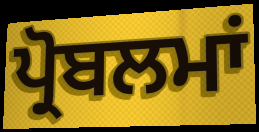
ਪ੍ਰੋਬਲਮਾਂ